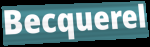
Becquerel